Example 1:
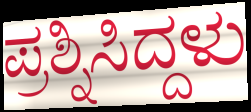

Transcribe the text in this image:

ಪ್ರಶ್ನಿಸಿದ್ದಳು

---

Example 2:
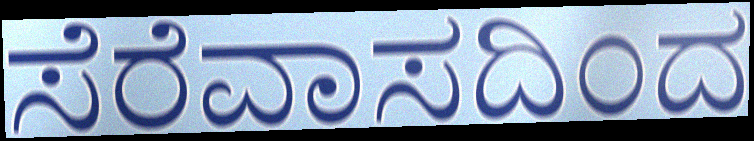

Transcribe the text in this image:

ಸೆರೆವಾಸದಿಂದ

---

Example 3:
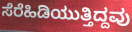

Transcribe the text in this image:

ಸೆರೆಹಿಡಿಯುತ್ತಿದ್ದವು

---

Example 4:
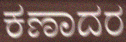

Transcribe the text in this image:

ಕಣಾದರ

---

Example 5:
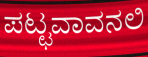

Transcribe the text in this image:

ಪಟ್ಟವಾವನಲಿ